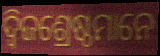
ଦ୍ୱିଜଶ୍ରେଷ୍ଠମାନେ